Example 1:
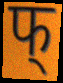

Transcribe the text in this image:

फ्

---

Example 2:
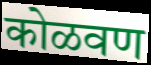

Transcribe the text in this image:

कोळवण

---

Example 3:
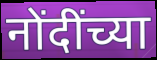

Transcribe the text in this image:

नोंदींच्या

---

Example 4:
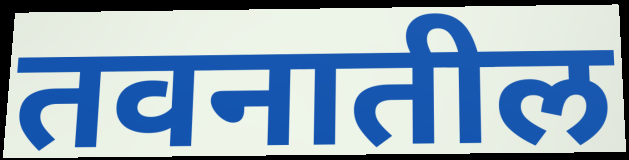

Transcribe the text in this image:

तवनातील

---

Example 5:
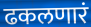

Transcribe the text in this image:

ढकलणारं